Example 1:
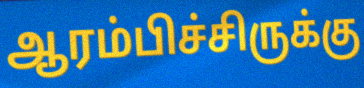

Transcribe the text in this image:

ஆரம்பிச்சிருக்கு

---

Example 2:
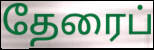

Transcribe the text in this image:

தேரைப்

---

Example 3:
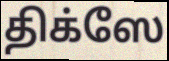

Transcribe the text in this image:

திக்ஸே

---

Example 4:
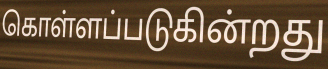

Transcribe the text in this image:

கொள்ளப்படுகின்றது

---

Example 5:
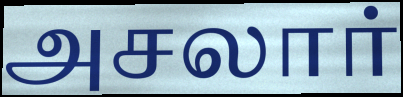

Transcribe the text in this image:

அசலார்